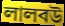
লালবউ